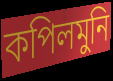
কপিলমুনি